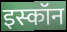
इस्‍कॉन